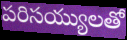
పరిసయ్యులతో